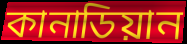
কানাডিয়ান